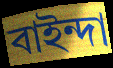
বাইন্দা